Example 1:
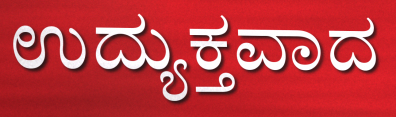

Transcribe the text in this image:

ಉದ್ಯುಕ್ತವಾದ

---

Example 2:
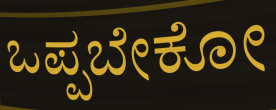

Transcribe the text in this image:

ಒಪ್ಪಬೇಕೋ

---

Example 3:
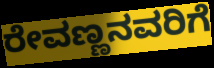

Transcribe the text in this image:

ರೇವಣ್ಣನವರಿಗೆ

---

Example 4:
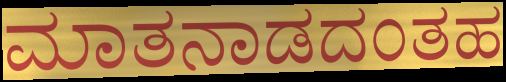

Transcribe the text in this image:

ಮಾತನಾಡದಂತಹ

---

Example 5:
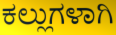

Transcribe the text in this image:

ಕಲ್ಲುಗಳಾಗಿ